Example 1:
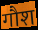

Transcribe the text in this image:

गौश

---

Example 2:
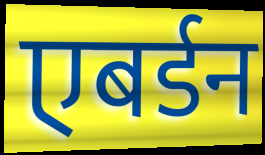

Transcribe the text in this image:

एबर्डन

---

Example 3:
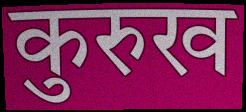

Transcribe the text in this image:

कुरुख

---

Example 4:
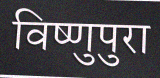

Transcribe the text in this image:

विष्णुपुरा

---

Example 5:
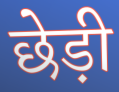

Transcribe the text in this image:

छेड़ी